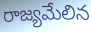
రాజ్యమేలిన